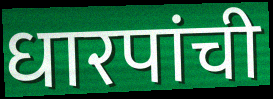
धारपांची